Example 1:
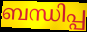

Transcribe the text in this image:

ബന്ധിപ്പ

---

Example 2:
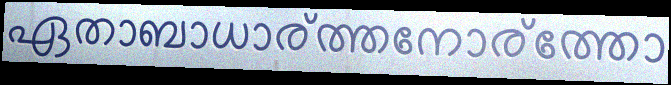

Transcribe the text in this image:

ഏതാബാധാര്ത്തനോര്ത്തോ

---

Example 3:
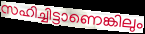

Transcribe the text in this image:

സഹിച്ചിട്ടാണെങ്കിലും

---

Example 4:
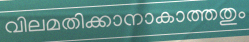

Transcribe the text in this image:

വിലമതിക്കാനാകാത്തതും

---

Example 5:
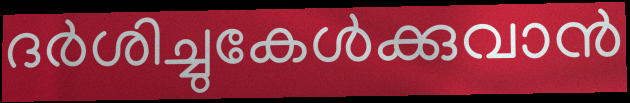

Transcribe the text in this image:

ദർശിച്ചുകേൾക്കുവാൻ